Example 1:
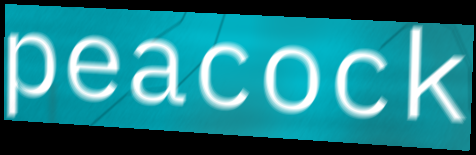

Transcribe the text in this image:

peacock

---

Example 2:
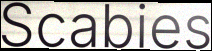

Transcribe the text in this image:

Scabies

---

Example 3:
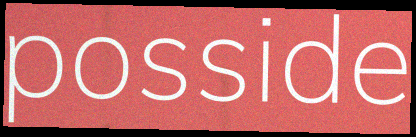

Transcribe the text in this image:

posside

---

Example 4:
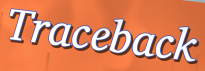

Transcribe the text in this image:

Traceback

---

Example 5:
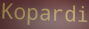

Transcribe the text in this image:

Kopardi